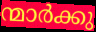
ന്മാർക്കു